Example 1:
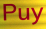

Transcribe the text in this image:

Puy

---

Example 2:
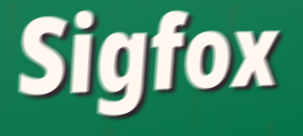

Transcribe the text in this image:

Sigfox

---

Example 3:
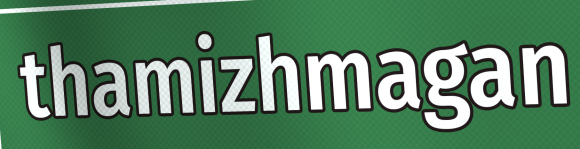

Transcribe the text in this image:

thamizhmagan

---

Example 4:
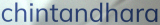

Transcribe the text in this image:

chintandhara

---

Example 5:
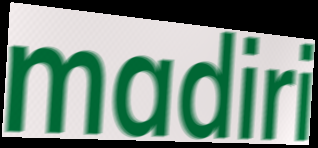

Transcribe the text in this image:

madiri